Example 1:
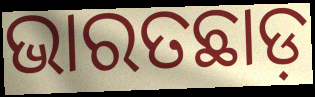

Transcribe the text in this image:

ଭାରତଛାଡ଼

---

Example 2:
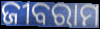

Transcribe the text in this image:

ଜୀବରାମ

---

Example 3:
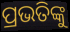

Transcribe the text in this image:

ପ୍ରଭତିଙ୍କୁ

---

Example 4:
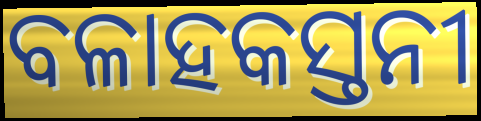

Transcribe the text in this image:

ବଳାହକସ୍ତନୀ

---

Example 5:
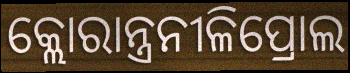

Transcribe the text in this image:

କ୍ଲୋରାନ୍ତ୍ରନୀଳିପ୍ରୋଲ